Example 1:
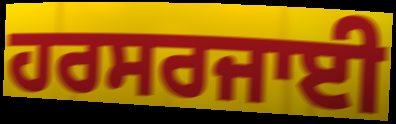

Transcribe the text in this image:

ਹਰਸਰਜਾਈ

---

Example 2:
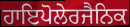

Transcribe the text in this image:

ਹਾਇਪੋਲੇਰਜੈਨਿਕ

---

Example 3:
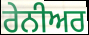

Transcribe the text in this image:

ਰੇਨੀਅਰ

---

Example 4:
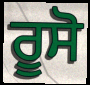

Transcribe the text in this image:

ਰੂਸੋ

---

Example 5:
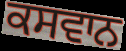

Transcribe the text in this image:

ਕਸਵਾਨ